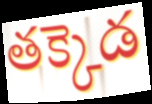
తక్కెడ